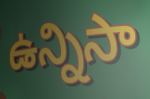
ఉన్నిసా